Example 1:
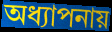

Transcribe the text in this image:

অধ্যাপনায়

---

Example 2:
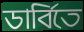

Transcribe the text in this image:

ডার্বিতে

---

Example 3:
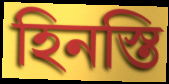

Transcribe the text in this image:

হিনস্তি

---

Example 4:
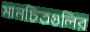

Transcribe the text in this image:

মানচিত্রগুলির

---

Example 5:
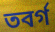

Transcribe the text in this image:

তবর্গ